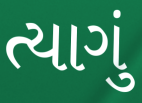
ત્યાગું